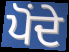
ਪੋਂਦੇ